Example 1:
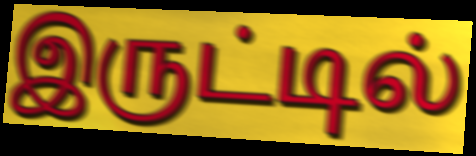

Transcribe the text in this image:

இருட்டில்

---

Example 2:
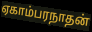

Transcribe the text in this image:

ஏகாம்பரநாதன்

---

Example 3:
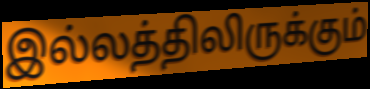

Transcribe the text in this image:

இல்லத்திலிருக்கும்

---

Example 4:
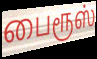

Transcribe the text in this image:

பைரூஸ்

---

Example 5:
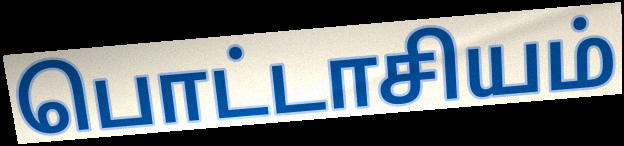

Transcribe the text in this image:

பொட்டாசியம்